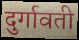
दुर्गावती